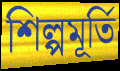
শিল্পমূর্তি